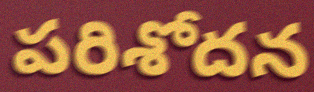
పరిశోదన